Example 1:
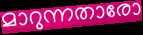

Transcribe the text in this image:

മാറുന്നതാരോ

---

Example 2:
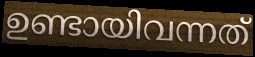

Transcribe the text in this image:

ഉണ്ടായിവന്നത്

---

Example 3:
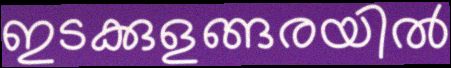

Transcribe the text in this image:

ഇടക്കുളങ്ങരയിൽ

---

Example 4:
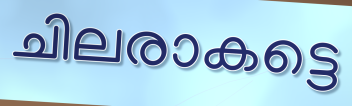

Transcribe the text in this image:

ചിലരാകട്ടെ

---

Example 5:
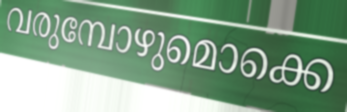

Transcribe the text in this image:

വരുമ്പോഴുമൊക്കെ